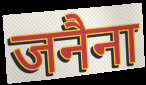
जनैना